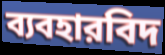
ব্যবহারবিদ